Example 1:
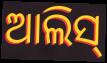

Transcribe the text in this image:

ଆଲିସ୍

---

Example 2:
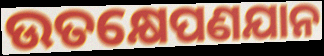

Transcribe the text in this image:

ଉତକ୍ଷେପଣଯାନ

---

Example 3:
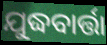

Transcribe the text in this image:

ଯୁଦ୍ଧବାର୍ତ୍ତା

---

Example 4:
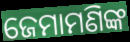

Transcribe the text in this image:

ଜେମାମଣିଙ୍କ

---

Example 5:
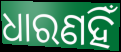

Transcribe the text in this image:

ଧାରଣହିଁ